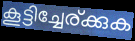
കൂട്ടിച്ചേര്ക്കുക